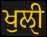
ਖੁਲੀੑ